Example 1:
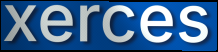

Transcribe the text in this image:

xerces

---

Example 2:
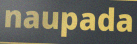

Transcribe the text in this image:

naupada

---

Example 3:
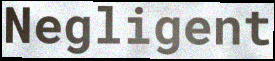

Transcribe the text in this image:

Negligent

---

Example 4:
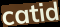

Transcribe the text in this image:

catid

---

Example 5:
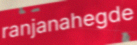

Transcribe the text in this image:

ranjanahegde